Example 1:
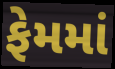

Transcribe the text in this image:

ફેમમાં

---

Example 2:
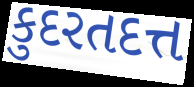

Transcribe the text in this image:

કુદરતદત્ત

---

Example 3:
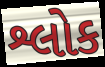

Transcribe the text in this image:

શ્લોક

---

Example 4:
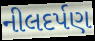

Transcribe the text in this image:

નીલદર્પણ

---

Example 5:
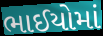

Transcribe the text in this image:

ભાઈયોમાં